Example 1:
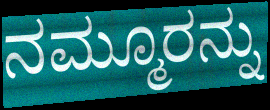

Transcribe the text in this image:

ನಮ್ಮೂರನ್ನು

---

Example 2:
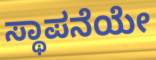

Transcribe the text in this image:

ಸ್ಥಾಪನೆಯೇ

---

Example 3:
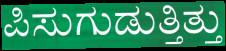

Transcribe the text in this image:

ಪಿಸುಗುಡುತ್ತಿತ್ತು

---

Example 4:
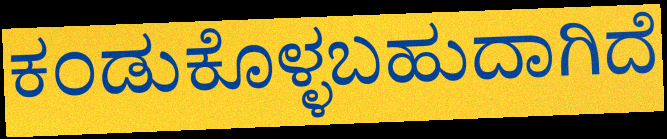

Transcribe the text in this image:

ಕಂಡುಕೊಳ್ಳಬಹುದಾಗಿದೆ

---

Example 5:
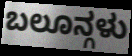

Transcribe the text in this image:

ಬಲೂನ್ಗಳು